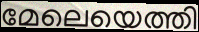
മേലെയെത്തി